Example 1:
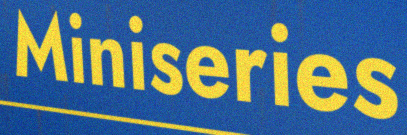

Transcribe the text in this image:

Miniseries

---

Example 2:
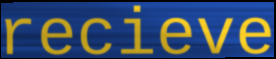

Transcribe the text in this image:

recieve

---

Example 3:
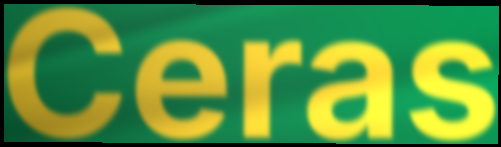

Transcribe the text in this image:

Ceras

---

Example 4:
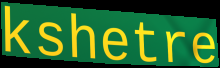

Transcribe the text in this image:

kshetre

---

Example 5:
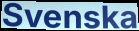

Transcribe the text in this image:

Svenska